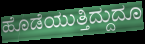
ಹೊಡೆಯುತ್ತಿದ್ದುದೂ